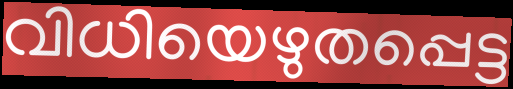
വിധിയെഴുതപ്പെട്ട